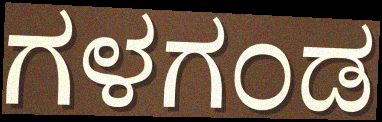
ಗಳಗಂಡ